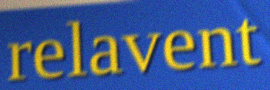
relavent